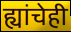
ह्यांचेही